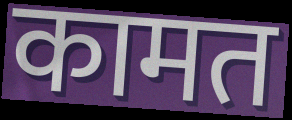
कामत